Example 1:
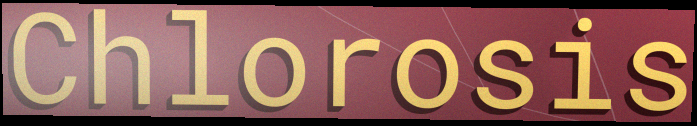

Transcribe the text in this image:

Chlorosis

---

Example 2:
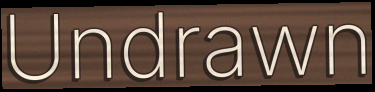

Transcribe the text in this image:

Undrawn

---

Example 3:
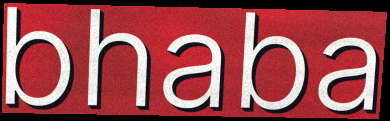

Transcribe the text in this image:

bhaba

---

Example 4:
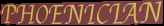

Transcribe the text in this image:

PHOENICIAN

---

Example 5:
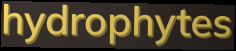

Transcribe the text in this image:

hydrophytes